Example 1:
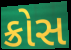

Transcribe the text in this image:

ક્રોસ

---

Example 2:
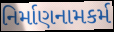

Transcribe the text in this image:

નિર્માણનામકર્મ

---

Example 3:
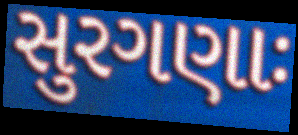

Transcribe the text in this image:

સુરગણાઃ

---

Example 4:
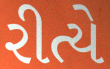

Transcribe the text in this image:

રીત્યે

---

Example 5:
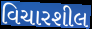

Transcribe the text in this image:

વિચારશીલ